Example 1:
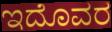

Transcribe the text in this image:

ಇದೊವರ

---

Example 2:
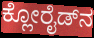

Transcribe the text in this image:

ಕ್ಲೋರೈಡ್‍ನ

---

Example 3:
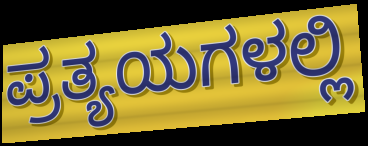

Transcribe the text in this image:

ಪ್ರತ್ಯಯಗಳಲ್ಲಿ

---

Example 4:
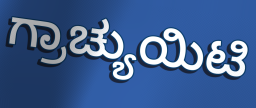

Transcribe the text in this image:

ಗ್ರಾಚ್ಯುಯಿಟಿ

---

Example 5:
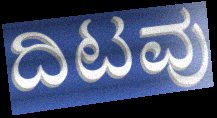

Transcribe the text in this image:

ದಿಟವು